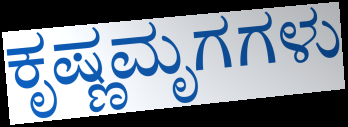
ಕೃಷ್ಣಮೃಗಗಳು